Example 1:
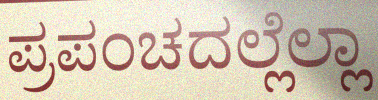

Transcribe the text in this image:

ಪ್ರಪಂಚದಲ್ಲೆಲ್ಲಾ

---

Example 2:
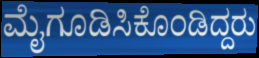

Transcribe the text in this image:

ಮೈಗೂಡಿಸಿಕೊಂಡಿದ್ದರು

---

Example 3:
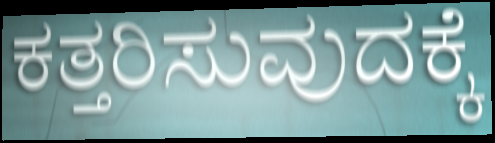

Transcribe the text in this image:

ಕತ್ತರಿಸುವುದಕ್ಕೆ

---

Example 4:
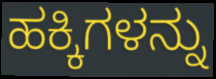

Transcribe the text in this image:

ಹಕ್ಕಿಗಳನ್ನು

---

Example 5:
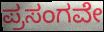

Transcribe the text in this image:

ಪ್ರಸಂಗವೇ